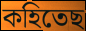
কহিতেছ